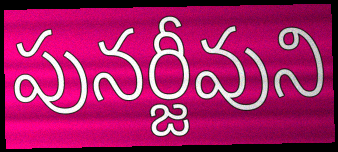
పునర్జీవుని